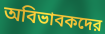
অবিভাবকদের